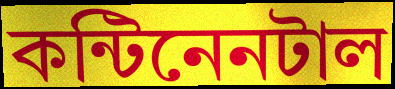
কন্টিনেনটাল